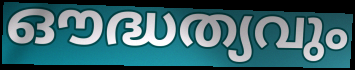
ഔദ്ധത്യവും